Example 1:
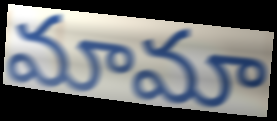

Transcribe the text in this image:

మామా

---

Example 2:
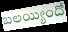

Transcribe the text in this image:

బలయ్యిందో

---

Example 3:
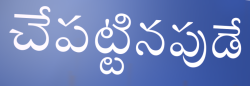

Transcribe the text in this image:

చేపట్టినపుడే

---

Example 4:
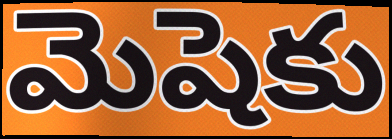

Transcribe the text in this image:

మెషెకు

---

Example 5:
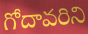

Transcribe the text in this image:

గోదావరిని